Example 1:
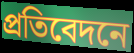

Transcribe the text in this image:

প্রতিবেদনে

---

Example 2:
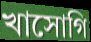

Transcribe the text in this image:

খাসোগি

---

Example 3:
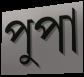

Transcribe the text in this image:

পুপা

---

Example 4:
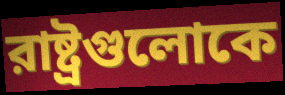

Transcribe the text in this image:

রাষ্ট্রগুলোকে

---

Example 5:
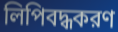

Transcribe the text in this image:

লিপিবদ্ধকরণ